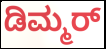
ಡಿಮ್ಮರ್